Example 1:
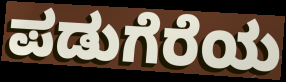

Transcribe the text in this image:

ಪಡುಗೆರೆಯ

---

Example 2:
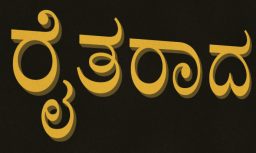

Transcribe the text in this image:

ರೈತರಾದ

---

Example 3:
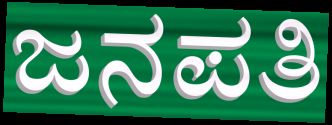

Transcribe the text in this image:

ಜನಪತಿ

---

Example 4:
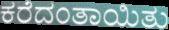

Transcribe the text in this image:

ಕರೆದಂತಾಯಿತು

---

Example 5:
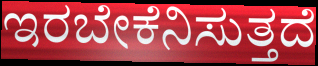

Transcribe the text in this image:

ಇರಬೇಕೆನಿಸುತ್ತದೆ